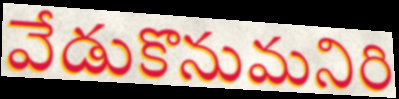
వేడుకొనుమనిరి